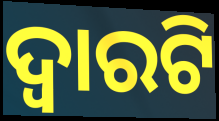
ଦ୍ୱାରଟି